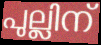
പുല്ലിന്